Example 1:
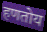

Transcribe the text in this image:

हणतोय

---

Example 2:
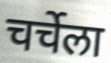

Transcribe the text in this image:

चर्चेला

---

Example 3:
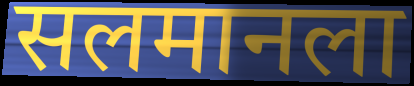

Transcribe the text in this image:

सलमानला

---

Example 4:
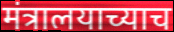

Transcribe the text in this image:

मंत्रालयाच्याच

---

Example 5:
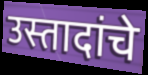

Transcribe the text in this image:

उस्तादांचे